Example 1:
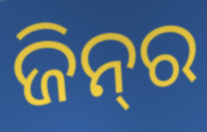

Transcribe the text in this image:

ଜିନ୍‌ର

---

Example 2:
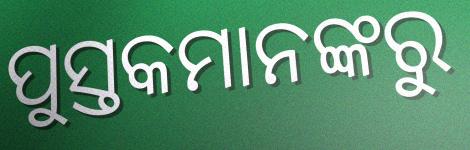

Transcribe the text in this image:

ପୁସ୍ତକମାନଙ୍କରୁ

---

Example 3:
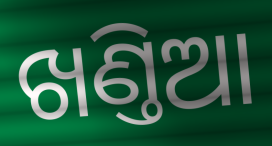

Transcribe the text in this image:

ଖଣ୍ତିଆ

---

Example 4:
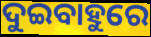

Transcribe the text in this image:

ଦୁଇବାହୁରେ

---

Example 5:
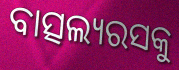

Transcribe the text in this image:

ବାତ୍ସଲ୍ୟରସକୁ